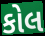
કોલ